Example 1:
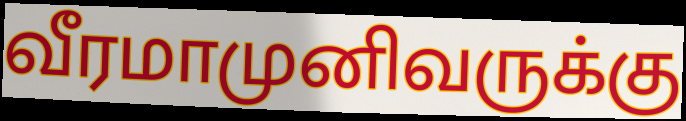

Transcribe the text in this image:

வீரமாமுனிவருக்கு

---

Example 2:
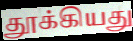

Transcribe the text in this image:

தூக்கியது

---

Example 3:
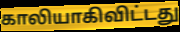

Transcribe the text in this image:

காலியாகிவிட்டது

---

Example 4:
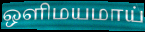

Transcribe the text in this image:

ஒளிமயமாய்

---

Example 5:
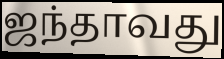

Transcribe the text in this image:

ஜந்தாவது